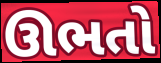
ઊભતો